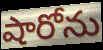
షారోను